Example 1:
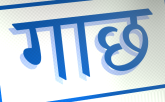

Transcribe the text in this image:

गाछ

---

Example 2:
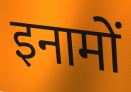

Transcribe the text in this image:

इनामों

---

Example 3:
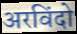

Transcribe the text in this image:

अरविंदो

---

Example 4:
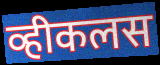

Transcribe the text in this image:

व्हीकलस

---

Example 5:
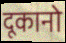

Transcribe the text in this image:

दूकानो